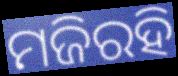
ମଜିରହି